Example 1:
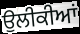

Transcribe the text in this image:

ਉਲੀਕੀਆਂ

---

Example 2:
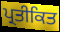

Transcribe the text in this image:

ਪ੍ਰਤੀਕਿਤ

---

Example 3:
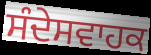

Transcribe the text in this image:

ਸੰਦੇਸਵਾਹਕ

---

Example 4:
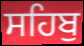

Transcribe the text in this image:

ਸਹਿਬੁ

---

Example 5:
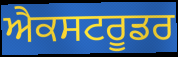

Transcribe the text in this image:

ਐਕਸਟਰੂਡਰ